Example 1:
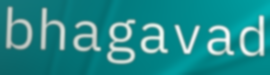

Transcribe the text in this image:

bhagavad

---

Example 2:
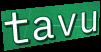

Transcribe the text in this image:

tavu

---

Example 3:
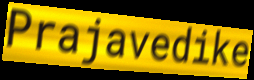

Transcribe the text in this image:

Prajavedike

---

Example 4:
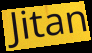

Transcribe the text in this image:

Jitan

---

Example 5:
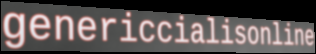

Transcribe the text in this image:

genericcialisonline